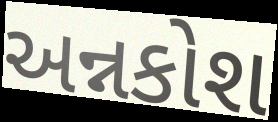
અન્નકોશ